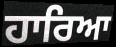
ਹਾਰਿਆ